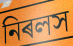
নিৰলস